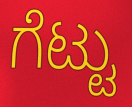
ಗೆಟ್ಟು